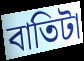
বাতিটা